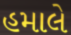
હમાલે